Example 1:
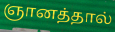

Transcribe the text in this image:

ஞானத்தால்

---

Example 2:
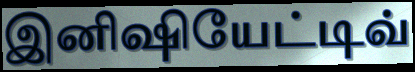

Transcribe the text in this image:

இனிஷியேட்டிவ்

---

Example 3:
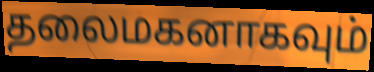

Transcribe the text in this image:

தலைமகனாகவும்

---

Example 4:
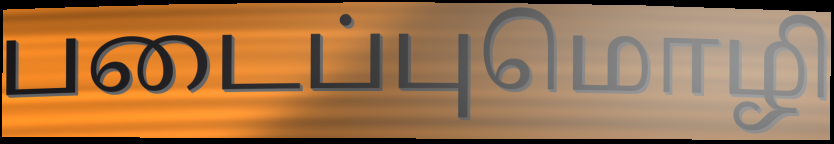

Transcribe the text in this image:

படைப்புமொழி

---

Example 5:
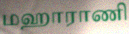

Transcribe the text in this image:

மஹாராணி